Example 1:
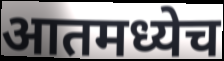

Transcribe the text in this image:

आतमध्येच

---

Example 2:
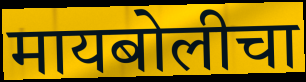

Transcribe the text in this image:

मायबोलीचा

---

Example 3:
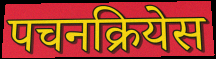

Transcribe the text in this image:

पचनक्रियेस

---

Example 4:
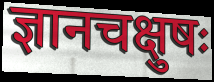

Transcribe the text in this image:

ज्ञानचक्षुषः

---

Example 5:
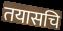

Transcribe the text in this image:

तयासचि